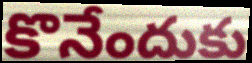
కొనేందుకు